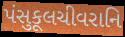
પંસુકૂલચીવરાનિ